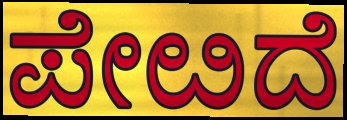
ಪೇೞದೆ